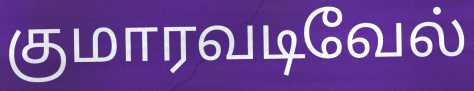
குமாரவடிவேல்